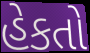
હેકતો